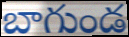
బాగుండ